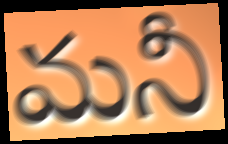
మనీ